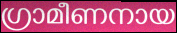
ഗ്രാമീണനായ